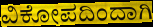
ವಿಕೋಪದಿಂದಾಗಿ